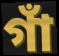
গাঁ